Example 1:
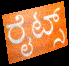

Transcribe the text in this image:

ರೈಟ್ಸ್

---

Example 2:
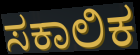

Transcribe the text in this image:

ಸಕಾಲಿಕ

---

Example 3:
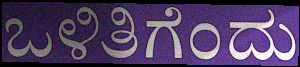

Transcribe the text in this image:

ಒಳಿತಿಗೆಂದು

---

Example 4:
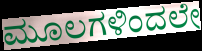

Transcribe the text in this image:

ಮೂಲಗಳಿಂದಲೇ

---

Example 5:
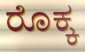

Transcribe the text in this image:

ರೊಕ್ಕ